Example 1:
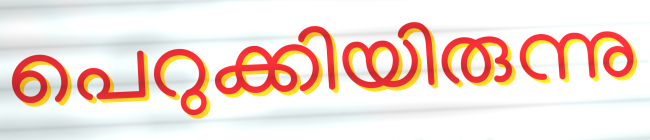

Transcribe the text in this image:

പെറുക്കിയിരുന്നു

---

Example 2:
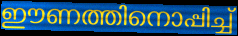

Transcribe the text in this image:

ഈണത്തിനൊപ്പിച്ച്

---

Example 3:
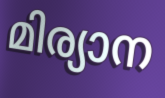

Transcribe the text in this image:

മിര്യാന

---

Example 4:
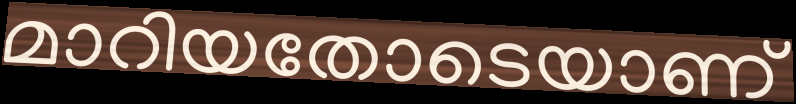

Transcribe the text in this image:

മാറിയതോടെയാണ്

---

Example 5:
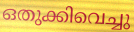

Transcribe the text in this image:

ഒതുക്കിവെച്ചു